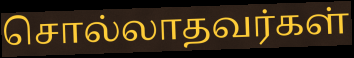
சொல்லாதவர்கள்